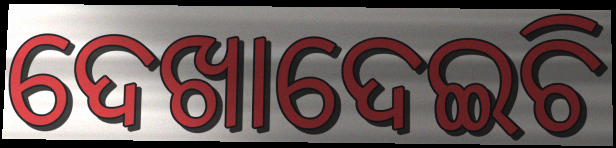
ଦେଖାଦେଇଚି